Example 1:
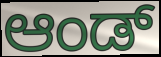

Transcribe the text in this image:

ಆಂಡ್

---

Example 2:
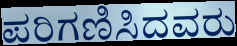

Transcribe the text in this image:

ಪರಿಗಣಿಸಿದವರು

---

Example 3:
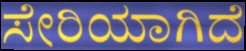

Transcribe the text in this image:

ಸೇರಿಯಾಗಿದೆ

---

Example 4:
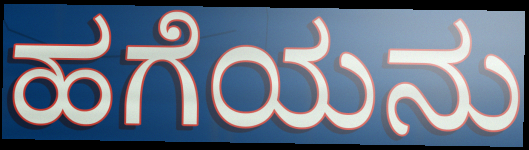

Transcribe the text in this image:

ಹಗೆಯನು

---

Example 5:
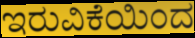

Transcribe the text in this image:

ಇರುವಿಕೆಯಿಂದ